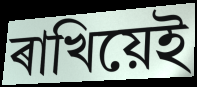
ৰাখিয়েই